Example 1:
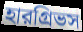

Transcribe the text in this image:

হারগ্রিভস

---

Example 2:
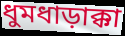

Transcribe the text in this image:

ধুমধাড়াক্কা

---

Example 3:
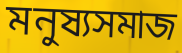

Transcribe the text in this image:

মনুষ্যসমাজ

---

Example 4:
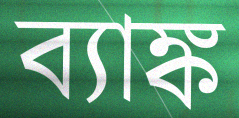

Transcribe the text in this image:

ব্যাঙ্ক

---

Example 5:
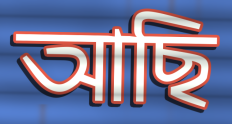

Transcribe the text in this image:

আছি